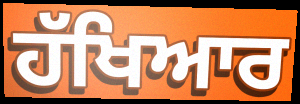
ਹੱਖਿਆਰ